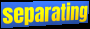
separating